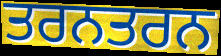
ਤਰਨਤਰਨ